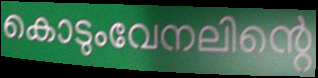
കൊടുംവേനലിന്റെ